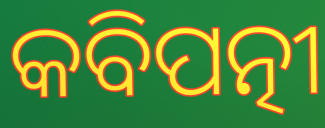
କବିପତ୍ନୀ